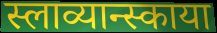
स्लाव्यान्स्काया